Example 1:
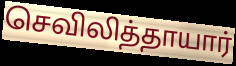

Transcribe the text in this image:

செவிலித்தாயார்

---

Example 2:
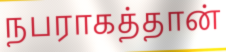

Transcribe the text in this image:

நபராகத்தான்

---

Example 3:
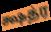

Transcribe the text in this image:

க்ஷத்ர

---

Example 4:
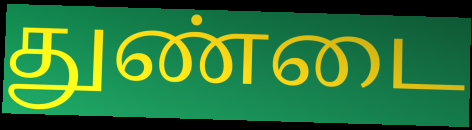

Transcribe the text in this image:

துண்டை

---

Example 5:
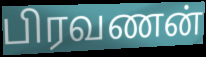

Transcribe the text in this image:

பிரவணன்